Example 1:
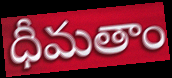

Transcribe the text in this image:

ధీమతాం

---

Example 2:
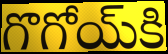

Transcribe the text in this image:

గొగోయ్‌కి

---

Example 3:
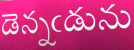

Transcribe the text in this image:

డెన్నఁడును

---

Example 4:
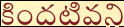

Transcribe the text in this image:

కిందటివని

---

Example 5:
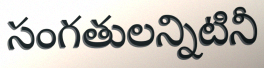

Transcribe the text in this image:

సంగతులన్నిటినీ